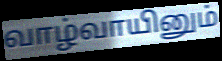
வாழ்வாயினும்